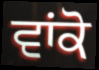
ਵਾਂਕੋ